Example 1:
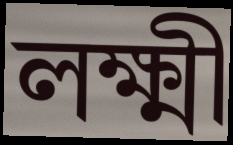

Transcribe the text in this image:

লক্ষ্মী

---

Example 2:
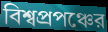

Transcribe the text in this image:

বিশ্বপ্রপঞ্চের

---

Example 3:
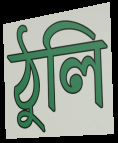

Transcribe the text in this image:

ঠুলি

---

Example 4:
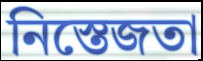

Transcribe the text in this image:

নিস্তেজতা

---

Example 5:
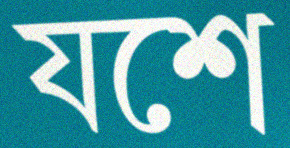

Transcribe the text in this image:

যশে